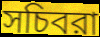
সচিবরা